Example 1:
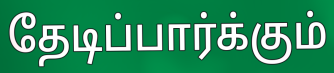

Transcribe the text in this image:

தேடிப்பார்க்கும்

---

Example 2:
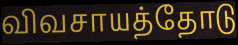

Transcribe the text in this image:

விவசாயத்தோடு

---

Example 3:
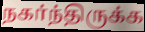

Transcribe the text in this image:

நகர்ந்திருக்க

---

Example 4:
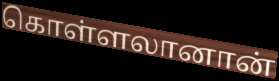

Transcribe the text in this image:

கொள்ளலானான்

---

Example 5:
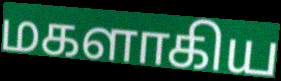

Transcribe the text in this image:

மகளாகிய